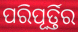
ପରିପୂର୍ତ୍ତିର